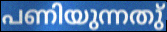
പണിയുന്നതു്